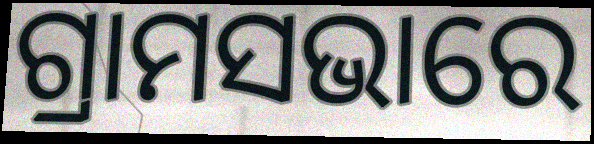
ଗ୍ରାମସଭାରେ